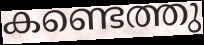
കണ്ടെത്തു